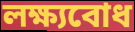
লক্ষ্যবোধ